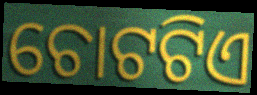
ଚୋଟଟିଏ